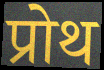
प्रोथ